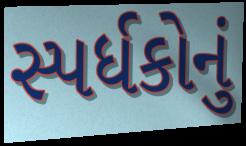
સ્પર્ધકોનું